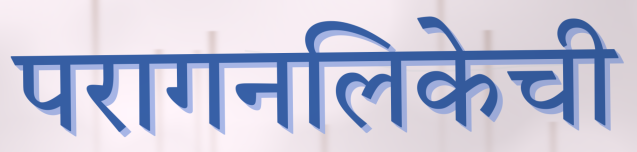
परागनलिकेची